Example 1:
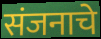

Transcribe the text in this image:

संजनाचे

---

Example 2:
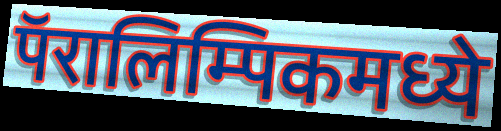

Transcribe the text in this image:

पॅरालिम्पिकमध्ये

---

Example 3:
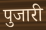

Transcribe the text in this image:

पुजारी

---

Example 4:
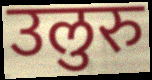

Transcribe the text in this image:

उलुरु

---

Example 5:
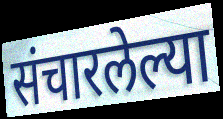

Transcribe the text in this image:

संचारलेल्या